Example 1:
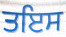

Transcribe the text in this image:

ਤਇਸ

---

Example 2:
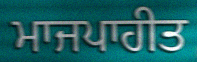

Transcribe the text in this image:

ਮਾਜਪਾਹੀਤ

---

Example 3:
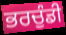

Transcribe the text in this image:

ਭਰਚੁੰਡੀ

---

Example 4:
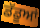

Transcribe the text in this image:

ਡੱਡੂਆਂ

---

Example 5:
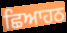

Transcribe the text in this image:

ਛਿਆਹਠ